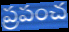
ప్రపంచ